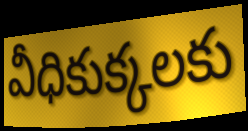
వీధికుక్కలకు